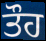
ਤੌਹ